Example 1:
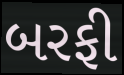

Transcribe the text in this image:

બરફી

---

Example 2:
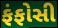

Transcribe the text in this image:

ફંફોસી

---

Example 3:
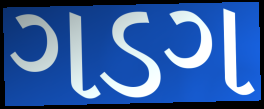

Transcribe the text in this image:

ગડગ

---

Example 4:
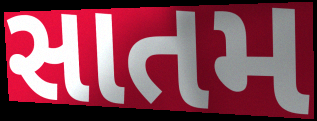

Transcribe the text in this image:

સાતમ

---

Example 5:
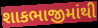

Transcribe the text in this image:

શાકભાજીમાંથી